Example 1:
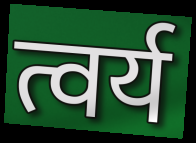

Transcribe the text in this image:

त्वर्य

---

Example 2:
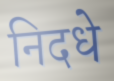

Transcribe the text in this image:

निदधे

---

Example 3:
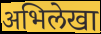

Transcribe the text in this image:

अभिलेखा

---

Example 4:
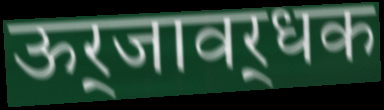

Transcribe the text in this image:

ऊर्जावर्धक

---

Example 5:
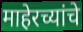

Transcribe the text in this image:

माहेरच्यांचे